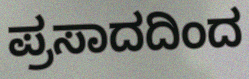
ಪ್ರಸಾದದಿಂದ